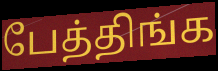
பேத்திங்க